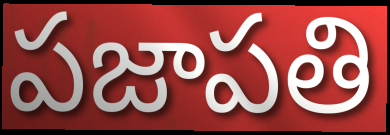
పజాపతి